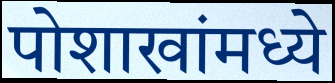
पोशाखांमध्ये